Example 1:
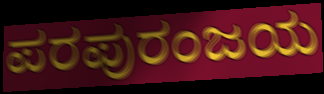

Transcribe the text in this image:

ಪರಪುರಂಜಯ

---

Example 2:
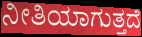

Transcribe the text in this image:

ನೀತಿಯಾಗುತ್ತದೆ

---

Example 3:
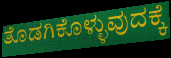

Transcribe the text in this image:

ತೊಡಗಿಕೊಳ್ಳುವುದಕ್ಕೆ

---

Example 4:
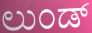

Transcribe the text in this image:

ಲುಂಡ್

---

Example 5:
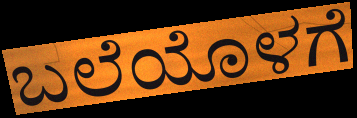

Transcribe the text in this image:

ಬಲೆಯೊಳಗೆ